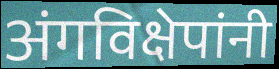
अंगविक्षेपांनी